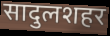
सादुलशहर